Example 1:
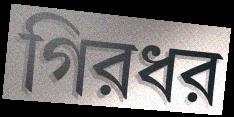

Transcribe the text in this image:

গিরধর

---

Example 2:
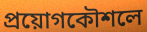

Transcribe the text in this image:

প্রয়োগকৌশলে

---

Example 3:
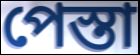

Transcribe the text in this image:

পেস্তা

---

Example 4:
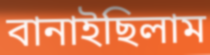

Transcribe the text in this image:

বানাইছিলাম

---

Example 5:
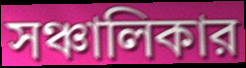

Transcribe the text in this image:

সঞ্চালিকার